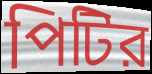
পিটির